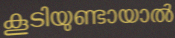
കൂടിയുണ്ടായാൽ